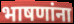
भाषणांना